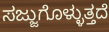
ಸಜ್ಜುಗೊಳ್ಳುತ್ತದೆ